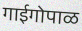
गाईगोपाळ